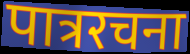
पात्ररचना